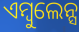
ଏମ୍ବୁଲେନ୍ସ